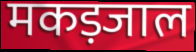
मकड़जाल